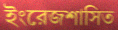
ইংরেজশাসিত